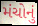
મંચોનું